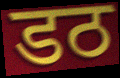
डठ